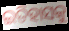
ଇତିହାସକୁ